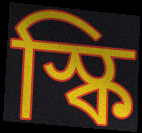
স্কি